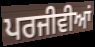
ਪਰਜੀਵੀਆਂ